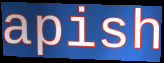
apish